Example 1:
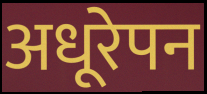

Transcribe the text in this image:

अधूरेपन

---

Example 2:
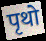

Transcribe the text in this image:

पृथो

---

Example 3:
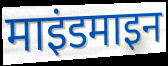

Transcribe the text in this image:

माइंडमाइन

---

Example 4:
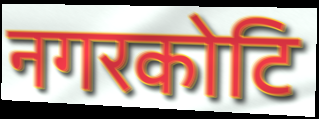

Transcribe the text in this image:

नगरकोटि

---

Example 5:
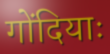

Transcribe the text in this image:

गोंदियाः